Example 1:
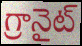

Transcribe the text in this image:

గ్రానైట్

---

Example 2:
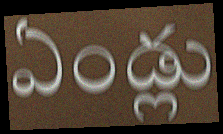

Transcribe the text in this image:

ఏండ్లు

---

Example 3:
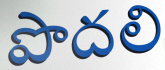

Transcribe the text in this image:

పొదలి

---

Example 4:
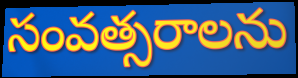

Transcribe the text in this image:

సంవత్సరాలను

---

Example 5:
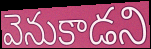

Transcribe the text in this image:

వెనుకాడని